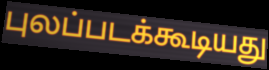
புலப்படக்கூடியது